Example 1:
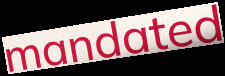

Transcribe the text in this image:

mandated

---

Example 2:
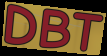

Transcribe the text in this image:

DBT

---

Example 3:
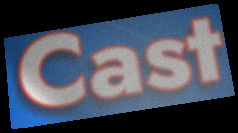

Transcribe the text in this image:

Cast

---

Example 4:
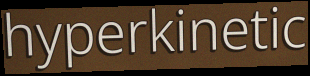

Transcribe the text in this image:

hyperkinetic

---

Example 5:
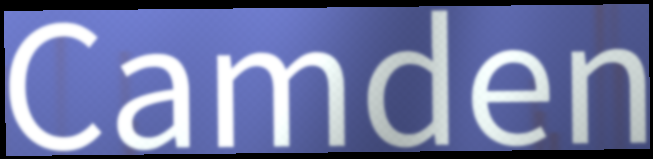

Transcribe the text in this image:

Camden